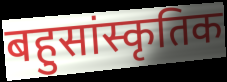
बहुसांस्कृतिक